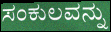
ಸಂಕುಲವನ್ನು